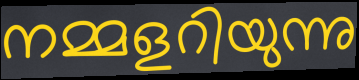
നമ്മളറിയുന്നു